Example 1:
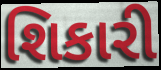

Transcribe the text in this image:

શિકારી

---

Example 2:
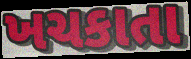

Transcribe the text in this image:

ખચકાતા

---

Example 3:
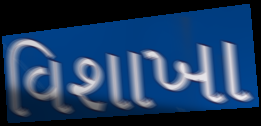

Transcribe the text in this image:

વિશાખા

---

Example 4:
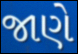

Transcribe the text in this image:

જાણે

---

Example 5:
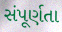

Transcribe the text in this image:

સંપૂર્ણતા